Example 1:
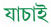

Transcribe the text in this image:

যাচাই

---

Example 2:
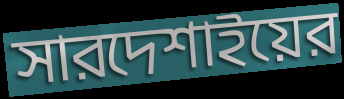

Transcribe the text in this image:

সারদেশাইয়ের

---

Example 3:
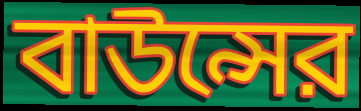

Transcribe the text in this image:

বাউন্সের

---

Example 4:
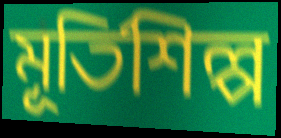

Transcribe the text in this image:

মূর্তিশিল্প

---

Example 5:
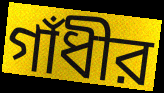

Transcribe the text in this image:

গাঁধীর